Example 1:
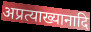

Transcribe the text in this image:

अप्रत्याख्यानादि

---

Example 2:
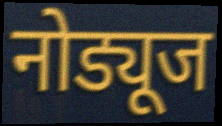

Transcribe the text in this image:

नोड्यूज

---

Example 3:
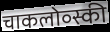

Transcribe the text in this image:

चाकलोव्स्की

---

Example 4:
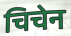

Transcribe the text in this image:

चिचेन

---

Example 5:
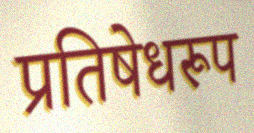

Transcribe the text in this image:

प्रतिषेधरूप